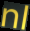
nl